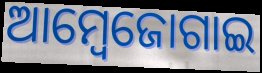
ଆମ୍ବେଜୋଗାଇ